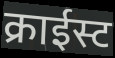
क्राईस्ट